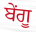
ਬੇਂਗੂ